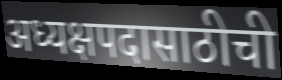
अध्यक्षपदासाठीची